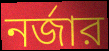
নর্জার